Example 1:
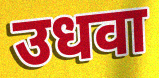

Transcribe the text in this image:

उधवा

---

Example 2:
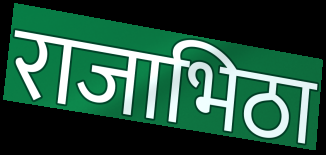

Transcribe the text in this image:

राजाभिठा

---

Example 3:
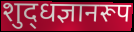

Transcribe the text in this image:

शुद्धज्ञानरूप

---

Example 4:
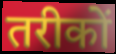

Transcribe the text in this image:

तरीकों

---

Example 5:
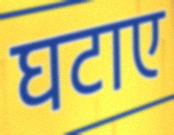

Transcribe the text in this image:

घटाए